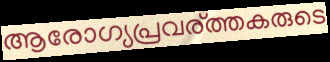
ആരോഗ്യപ്രവര്ത്തകരുടെ